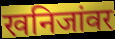
खनिजांवर